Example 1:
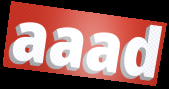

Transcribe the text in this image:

aaad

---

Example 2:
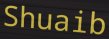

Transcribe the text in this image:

Shuaib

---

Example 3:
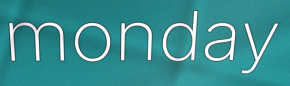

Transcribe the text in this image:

monday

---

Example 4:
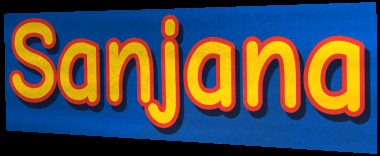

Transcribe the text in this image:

Sanjana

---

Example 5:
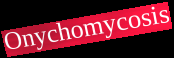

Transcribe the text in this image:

Onychomycosis